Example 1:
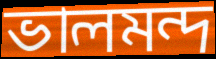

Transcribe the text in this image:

ভালমন্দ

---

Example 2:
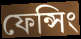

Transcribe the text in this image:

ফেন্সিং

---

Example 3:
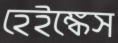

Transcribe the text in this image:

হেইঙ্কেস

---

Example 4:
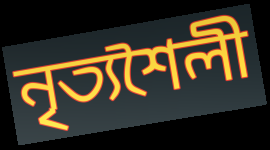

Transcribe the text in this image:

নৃত্যশৈলী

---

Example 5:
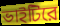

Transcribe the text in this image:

ভাইটিরে